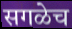
सगळेच